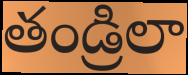
తండ్రిలా